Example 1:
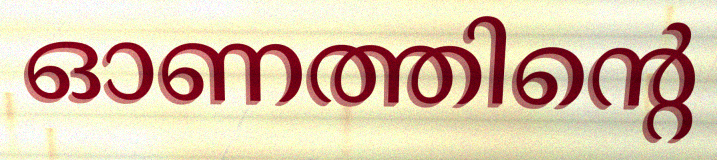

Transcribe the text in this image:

ഓണത്തിന്റെ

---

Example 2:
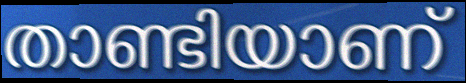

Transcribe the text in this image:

താണ്ടിയാണ്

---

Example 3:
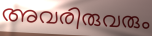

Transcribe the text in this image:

അവരിരുവരും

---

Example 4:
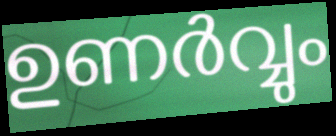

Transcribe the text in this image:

ഉണർവ്വും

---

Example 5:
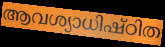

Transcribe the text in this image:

ആവശ്യാധിഷ്ഠിത